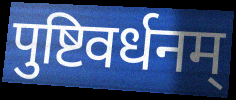
पुष्टिवर्धनम्